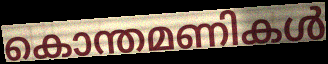
കൊന്തമണികൾ